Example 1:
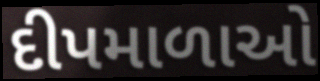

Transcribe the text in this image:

દીપમાળાઓ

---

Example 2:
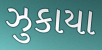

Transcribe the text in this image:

ઝુકાયા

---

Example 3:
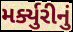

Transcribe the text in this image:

મર્ક્યુરીનું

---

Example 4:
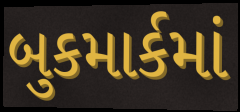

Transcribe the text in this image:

બુકમાર્કમાં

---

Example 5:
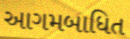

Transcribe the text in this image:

આગમબાધિત